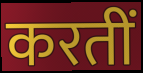
करतीं